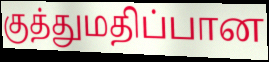
குத்துமதிப்பான